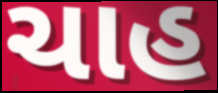
ચાહ